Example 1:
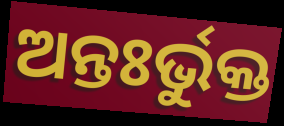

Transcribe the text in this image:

ଅନ୍ତଃର୍ଭୁକ୍ତ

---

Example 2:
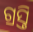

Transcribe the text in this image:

ଗ୍ରସ୍ତି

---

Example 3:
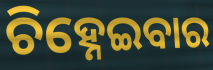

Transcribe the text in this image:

ଚିହ୍ନେଇବାର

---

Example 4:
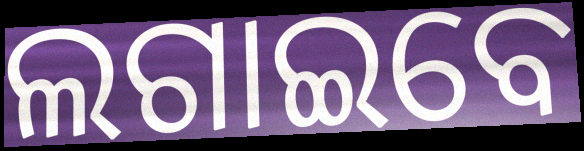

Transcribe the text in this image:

ଲଗାଇବେ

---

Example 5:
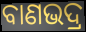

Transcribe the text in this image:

ବାଣଭଦ୍ର